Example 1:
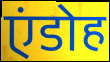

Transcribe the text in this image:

एंडोह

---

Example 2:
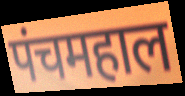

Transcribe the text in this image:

पंचमहाल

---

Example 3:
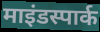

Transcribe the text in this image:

माइंडस्पार्क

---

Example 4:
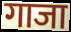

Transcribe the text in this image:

गाजा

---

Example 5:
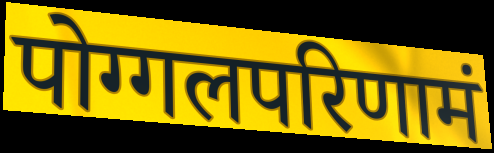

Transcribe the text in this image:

पोग्गलपरिणामं